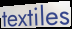
textiles